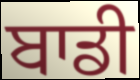
ਬਾਡੀ